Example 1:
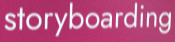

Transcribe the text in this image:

storyboarding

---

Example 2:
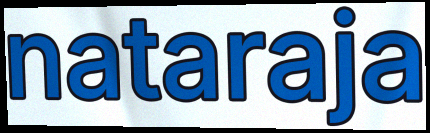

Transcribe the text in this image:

nataraja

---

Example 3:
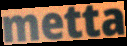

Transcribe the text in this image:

metta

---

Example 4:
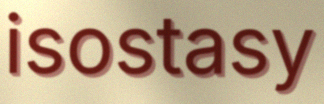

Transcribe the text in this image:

isostasy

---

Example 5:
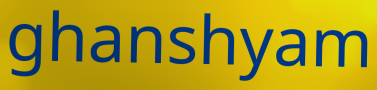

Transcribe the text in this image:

ghanshyam